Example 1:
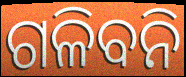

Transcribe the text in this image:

ଗଳିବନି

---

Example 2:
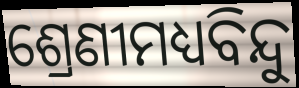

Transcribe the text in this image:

ଶ୍ରେଣୀମଧ୍ୟବିନ୍ଦୁ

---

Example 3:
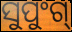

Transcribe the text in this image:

ସୁପୁଂଗ୍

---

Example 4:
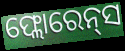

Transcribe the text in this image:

ଫ୍ଲୋରେନ୍‌ସ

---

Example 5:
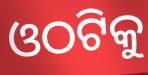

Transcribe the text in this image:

ଓଠଟିକୁ